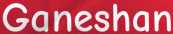
Ganeshan